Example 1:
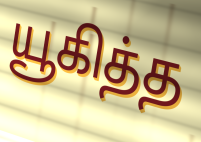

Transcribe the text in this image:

யூகித்த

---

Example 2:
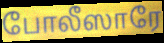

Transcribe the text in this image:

போலீஸாரே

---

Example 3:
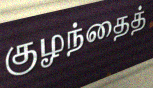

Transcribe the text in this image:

குழந்தைத்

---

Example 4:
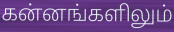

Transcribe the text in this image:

கன்னங்களிலும்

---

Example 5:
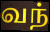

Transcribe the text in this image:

வந்